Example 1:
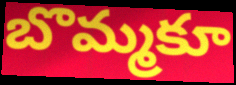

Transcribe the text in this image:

బొమ్మకూ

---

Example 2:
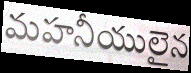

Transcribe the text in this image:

మహనీయులైన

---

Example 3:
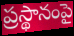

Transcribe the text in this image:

ప్రస్థానంపై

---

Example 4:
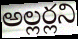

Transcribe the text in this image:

అల్లర్లని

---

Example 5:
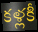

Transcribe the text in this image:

కళ్లకీ